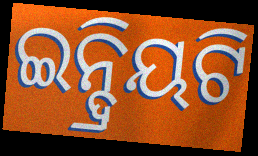
ଇନ୍ଦ୍ରିୟଟି